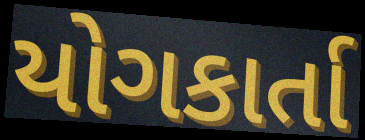
યોગકાર્તા